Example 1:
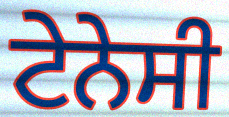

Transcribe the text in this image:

ਟੇਨੇਸੀ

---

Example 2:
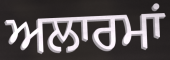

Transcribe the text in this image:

ਅਲਾਰਮਾਂ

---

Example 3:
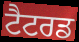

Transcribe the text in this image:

ਟੈਟਰਡ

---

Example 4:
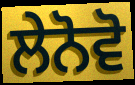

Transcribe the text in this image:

ਲੇਨੋਵੋ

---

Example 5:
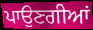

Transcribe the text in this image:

ਪਾਉਣਗੀਆਂ